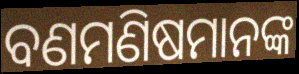
ବଣମଣିଷମାନଙ୍କ